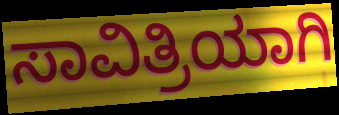
ಸಾವಿತ್ರಿಯಾಗಿ